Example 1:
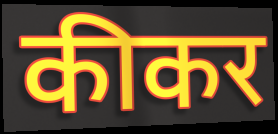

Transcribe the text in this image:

कीकर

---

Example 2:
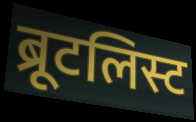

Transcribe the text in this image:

ब्रूटलिस्ट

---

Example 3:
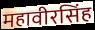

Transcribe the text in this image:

महावीरसिंह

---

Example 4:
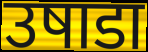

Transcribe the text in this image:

उषाडा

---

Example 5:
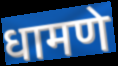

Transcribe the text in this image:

धामणे